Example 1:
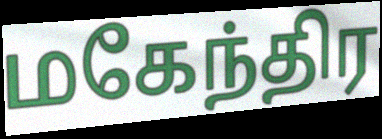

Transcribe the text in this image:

மகேந்திர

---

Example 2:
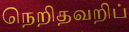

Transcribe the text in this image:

நெறிதவறிப்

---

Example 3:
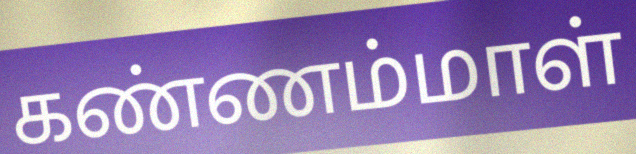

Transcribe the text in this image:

கண்ணம்மாள்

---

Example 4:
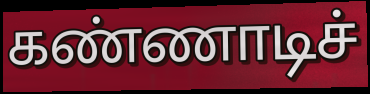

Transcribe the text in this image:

கண்ணாடிச்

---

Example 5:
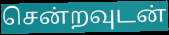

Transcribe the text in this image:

சென்றவுடன்